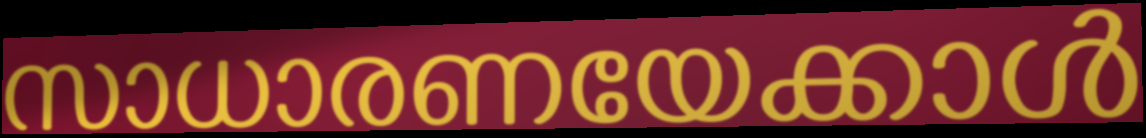
സാധാരണയേക്കാൾ